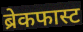
ब्रेकफास्ट